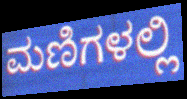
ಮಣಿಗಳಲ್ಲಿ